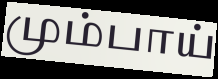
மும்பாய்